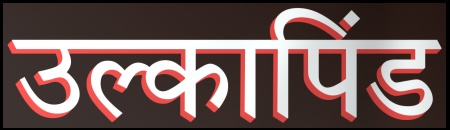
उल्कापिंड